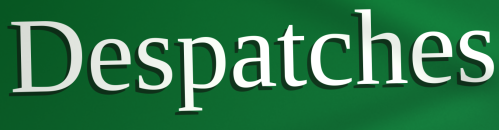
Despatches